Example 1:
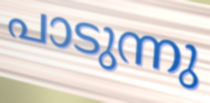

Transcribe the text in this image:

പാടുന്നു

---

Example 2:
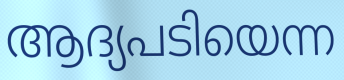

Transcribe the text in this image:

ആദ്യപടിയെന്ന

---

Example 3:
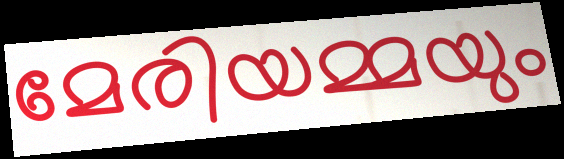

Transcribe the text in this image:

മേരിയമ്മയും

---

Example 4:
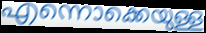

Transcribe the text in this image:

എന്നൊക്കെയുള്ള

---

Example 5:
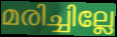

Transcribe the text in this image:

മരിച്ചില്ലേ